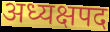
अध्यक्षपद